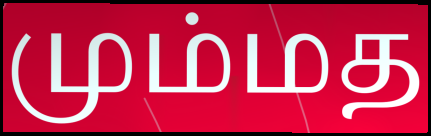
மும்மத